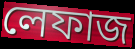
লেফাজ